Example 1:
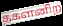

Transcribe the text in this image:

தகளனிற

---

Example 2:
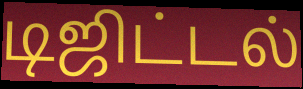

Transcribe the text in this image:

டிஜிட்டல்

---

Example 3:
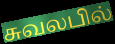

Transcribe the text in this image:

சுவலபில்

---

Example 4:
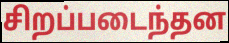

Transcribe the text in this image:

சிறப்படைந்தன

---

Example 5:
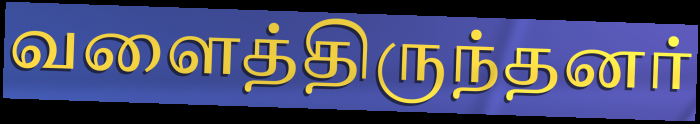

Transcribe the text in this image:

வளைத்திருந்தனர்